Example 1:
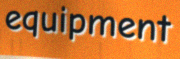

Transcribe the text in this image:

equipment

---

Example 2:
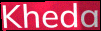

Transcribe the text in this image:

Kheda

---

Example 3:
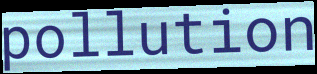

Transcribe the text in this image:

pollution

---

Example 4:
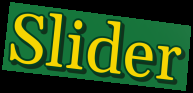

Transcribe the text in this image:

Slider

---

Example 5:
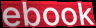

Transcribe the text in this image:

ebook